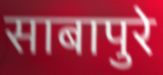
साबापुरे